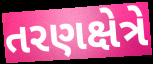
તરણક્ષેત્રે